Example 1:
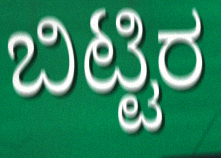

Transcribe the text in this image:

ಬಿಟ್ಟಿರ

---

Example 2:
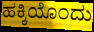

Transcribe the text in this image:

ಹಕ್ಕಿಯೊಂದು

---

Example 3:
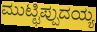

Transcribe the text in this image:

ಮುಟ್ಟಿಪ್ಪುದಯ್ಯ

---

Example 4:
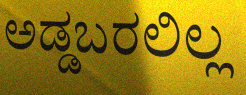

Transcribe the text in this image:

ಅಡ್ಡಬರಲಿಲ್ಲ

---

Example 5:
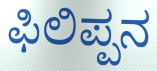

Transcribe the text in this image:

ಫಿಲಿಪ್ಪನ